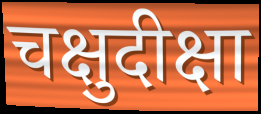
चक्षुदीक्षा